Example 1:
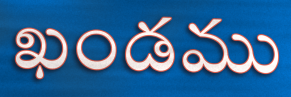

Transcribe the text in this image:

ఖండము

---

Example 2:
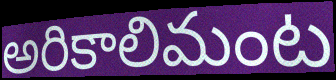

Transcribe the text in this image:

అరికాలిమంట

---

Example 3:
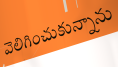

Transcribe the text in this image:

వెలిగించుకున్నాను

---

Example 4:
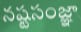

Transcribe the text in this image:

నష్టసంజ్ఞా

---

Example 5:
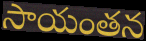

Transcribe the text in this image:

సాయంతన